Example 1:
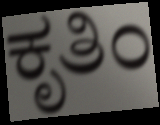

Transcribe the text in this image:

ಕೃತಿಂ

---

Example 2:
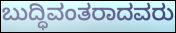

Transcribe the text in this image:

ಬುದ್ಧಿವಂತರಾದವರು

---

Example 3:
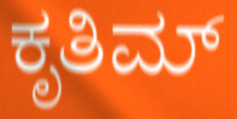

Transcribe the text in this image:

ಕೃತಿಮ್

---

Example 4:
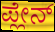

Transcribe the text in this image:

ಪ್ಲೇನ್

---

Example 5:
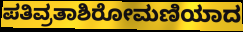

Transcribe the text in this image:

ಪತಿವ್ರತಾಶಿರೋಮಣಿಯಾದ